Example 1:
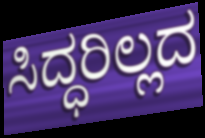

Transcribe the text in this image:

ಸಿದ್ಧರಿಲ್ಲದ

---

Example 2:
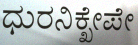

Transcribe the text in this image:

ಧುರನಿಕ್ಖೇಪೇ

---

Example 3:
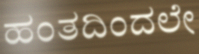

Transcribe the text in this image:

ಹಂತದಿಂದಲೇ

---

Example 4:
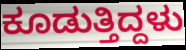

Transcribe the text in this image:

ಕೂಡುತ್ತಿದ್ದಳು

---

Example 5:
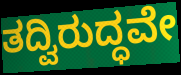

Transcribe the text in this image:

ತದ್ವಿರುದ್ಧವೇ